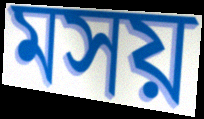
মসয়